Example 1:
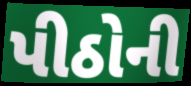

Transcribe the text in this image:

પીઠોની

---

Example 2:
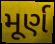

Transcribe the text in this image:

મૂર્ણ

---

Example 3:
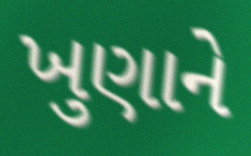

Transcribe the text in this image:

ખુણાને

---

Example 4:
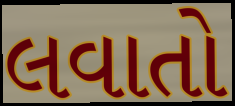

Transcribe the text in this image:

લવાતો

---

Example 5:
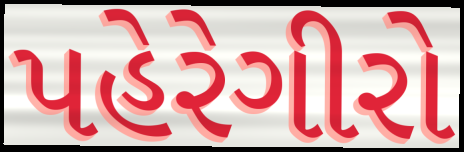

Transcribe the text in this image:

પહેરેગીરો